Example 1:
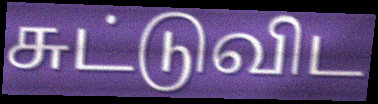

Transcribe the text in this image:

சுட்டுவிட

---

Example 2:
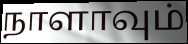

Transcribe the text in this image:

நாளாவும்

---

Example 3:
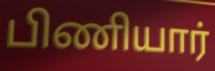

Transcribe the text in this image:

பிணியார்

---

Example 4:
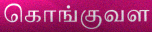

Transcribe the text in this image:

கொங்குவள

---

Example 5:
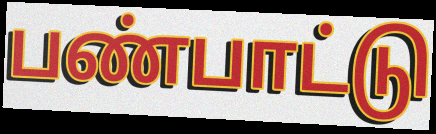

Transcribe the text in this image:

பண்பாட்டு